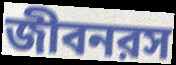
জীবনরস